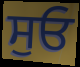
ਸੁਓ